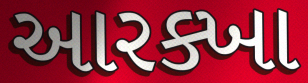
આરક્ખા